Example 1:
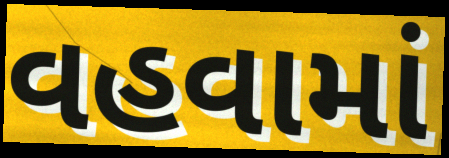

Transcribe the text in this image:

વહવામાં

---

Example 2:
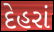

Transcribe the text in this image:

દેહરાં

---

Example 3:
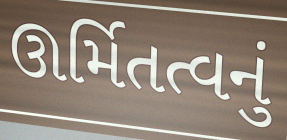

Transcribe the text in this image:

ઊર્મિતત્વનું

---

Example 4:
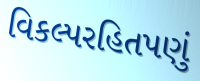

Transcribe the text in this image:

વિકલ્પરહિતપણું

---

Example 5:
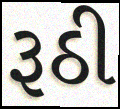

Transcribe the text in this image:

રૂઠી